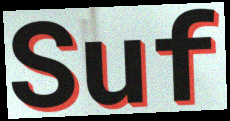
Suf